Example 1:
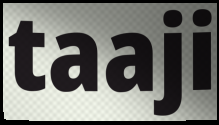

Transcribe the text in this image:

taaji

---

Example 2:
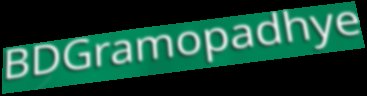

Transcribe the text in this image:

BDGramopadhye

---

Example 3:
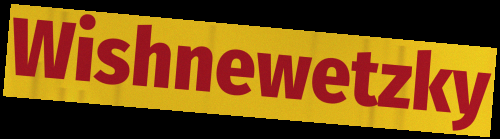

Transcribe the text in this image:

Wishnewetzky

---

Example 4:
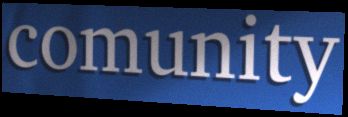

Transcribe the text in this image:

comunity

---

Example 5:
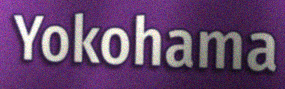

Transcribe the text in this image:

Yokohama